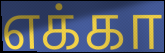
எக்கா